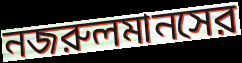
নজরুলমানসের